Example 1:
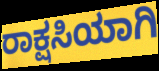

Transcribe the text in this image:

ರಾಕ್ಷಸಿಯಾಗಿ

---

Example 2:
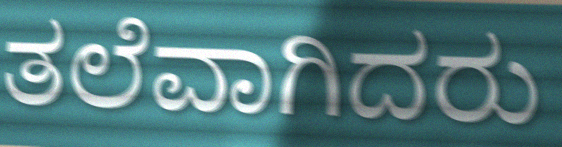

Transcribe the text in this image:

ತಲೆವಾಗಿದರು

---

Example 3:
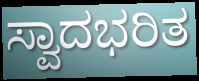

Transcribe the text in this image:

ಸ್ವಾದಭರಿತ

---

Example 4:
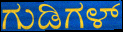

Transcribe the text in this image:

ಗುಡಿಗಳ್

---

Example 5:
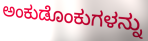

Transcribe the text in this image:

ಅಂಕುಡೊಂಕುಗಳನ್ನು